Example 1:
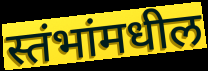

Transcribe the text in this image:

स्तंभांमधील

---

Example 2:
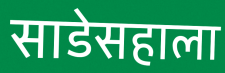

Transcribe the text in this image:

साडेसहाला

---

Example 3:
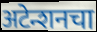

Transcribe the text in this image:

अटेन्शनचा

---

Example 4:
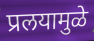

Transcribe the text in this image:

प्रलयामुळे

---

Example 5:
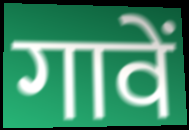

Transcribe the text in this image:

गावें